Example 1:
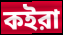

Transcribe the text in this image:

কইরা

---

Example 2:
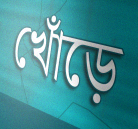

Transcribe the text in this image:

খোঁড়ে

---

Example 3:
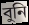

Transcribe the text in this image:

বুনি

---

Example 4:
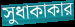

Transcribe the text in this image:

সুধাকাকার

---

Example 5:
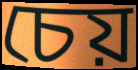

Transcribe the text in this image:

চেয়